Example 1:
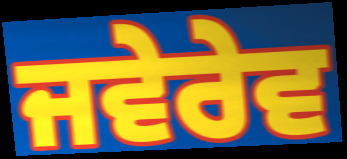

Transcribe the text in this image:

ਜਵੇਰੇਵ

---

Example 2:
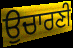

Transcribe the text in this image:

ਉਚਾਰਣੀ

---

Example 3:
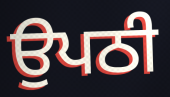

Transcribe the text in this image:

ਉਪਠੀ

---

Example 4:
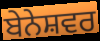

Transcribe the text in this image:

ਬੇਨੇਸ਼ਵਰ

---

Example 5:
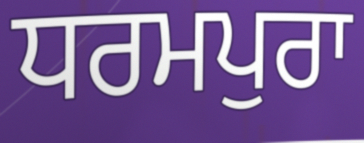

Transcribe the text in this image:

ਧਰਮਪੁਰਾ